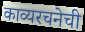
काव्यरचनेची